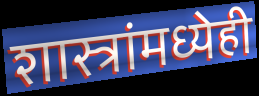
शास्त्रांमध्येही